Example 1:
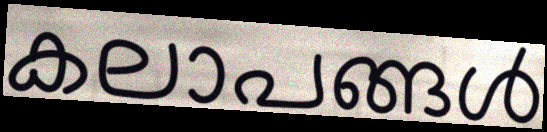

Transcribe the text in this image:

കലാപങ്ങൾ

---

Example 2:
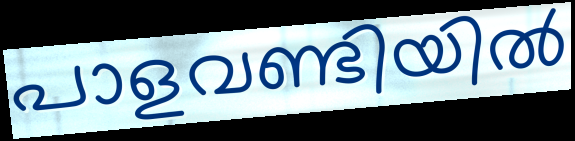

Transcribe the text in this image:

പാളവണ്ടിയിൽ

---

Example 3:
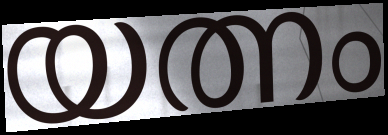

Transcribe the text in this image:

യത്നം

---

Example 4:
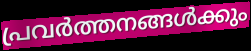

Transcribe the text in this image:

പ്രവർത്തനങ്ങൾക്കും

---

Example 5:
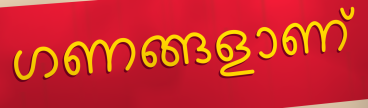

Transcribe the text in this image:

ഗണങ്ങളാണ്